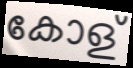
കോള്